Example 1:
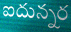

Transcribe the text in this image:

ఐదున్నర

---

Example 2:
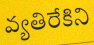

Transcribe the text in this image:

వ్యతిరేకిని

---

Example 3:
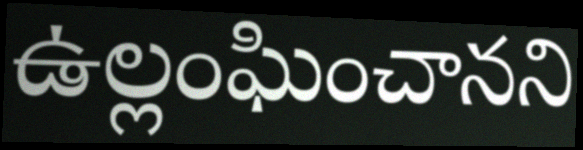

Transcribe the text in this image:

ఉల్లంఘించానని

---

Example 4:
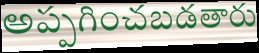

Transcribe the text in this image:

అప్పగించబడతారు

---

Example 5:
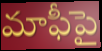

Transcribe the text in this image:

మాఫీపై